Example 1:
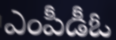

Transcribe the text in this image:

ఎంపీడీఓ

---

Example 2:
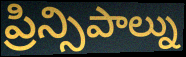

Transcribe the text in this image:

ప్రిన్సిపాల్ను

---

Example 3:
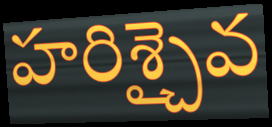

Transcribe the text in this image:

హరిశ్చైవ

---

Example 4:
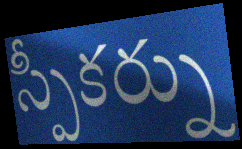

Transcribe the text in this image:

స్పీకర్ను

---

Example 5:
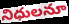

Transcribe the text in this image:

నిధులనూ